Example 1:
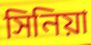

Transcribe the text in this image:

সিনিয়া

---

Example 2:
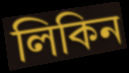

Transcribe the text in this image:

লিকিন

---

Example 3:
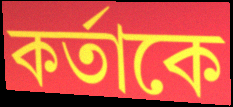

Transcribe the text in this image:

কর্তাকে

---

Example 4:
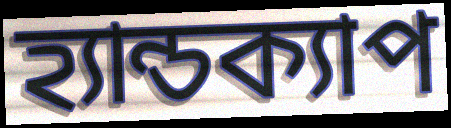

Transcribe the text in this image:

হ্যান্ডক্যাপ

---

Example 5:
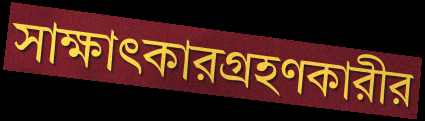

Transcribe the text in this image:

সাক্ষাৎকারগ্রহণকারীর